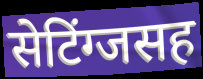
सेटिंग्जसह